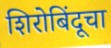
शिरोबिंदूचा